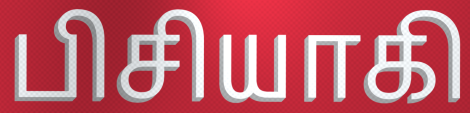
பிசியாகி